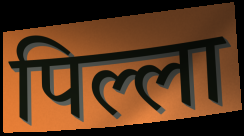
पिल्ला